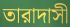
তারাদাসী